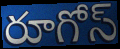
రూగోస్